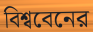
বিশ্ববেনের